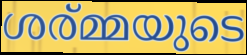
ശര്മ്മയുടെ